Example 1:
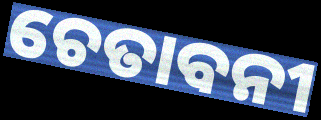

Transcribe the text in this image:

ଚେତାବନୀ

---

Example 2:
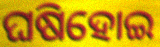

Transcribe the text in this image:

ଘଷିହୋଇ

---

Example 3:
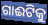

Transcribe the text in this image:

ଗାଈଟିକୁ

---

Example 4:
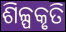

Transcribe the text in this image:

ଶିଳ୍ପକୃତି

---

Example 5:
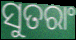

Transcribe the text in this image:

ସୁତରାଂ